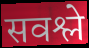
सवश्ले